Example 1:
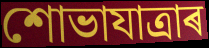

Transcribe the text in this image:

শোভাযাত্ৰাৰ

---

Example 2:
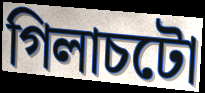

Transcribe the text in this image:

গিলাচটো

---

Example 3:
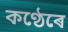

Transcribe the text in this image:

কণ্ঠেৰে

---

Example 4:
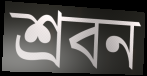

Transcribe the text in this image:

শ্ৰবন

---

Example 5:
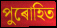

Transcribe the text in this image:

পুৰোহিত